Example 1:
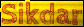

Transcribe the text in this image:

Sikdar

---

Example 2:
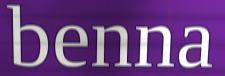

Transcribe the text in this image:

benna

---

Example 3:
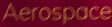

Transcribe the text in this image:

Aerospace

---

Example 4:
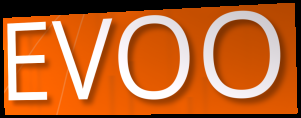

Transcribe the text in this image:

EVOO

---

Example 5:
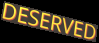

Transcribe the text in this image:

DESERVED